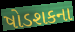
ષોડશકના